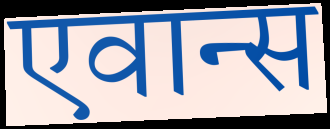
एवान्स